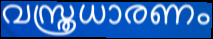
വസ്ത്രധാരണം